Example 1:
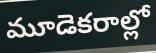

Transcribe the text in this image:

మూడెకరాల్లో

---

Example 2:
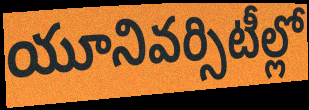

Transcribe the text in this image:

యూనివర్సిటీల్లో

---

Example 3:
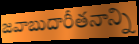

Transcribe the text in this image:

జవాబుదారీతనాన్ని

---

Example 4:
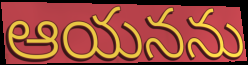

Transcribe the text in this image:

ఆయనను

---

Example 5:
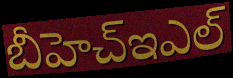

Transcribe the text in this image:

బీహెచ్ఇఎల్